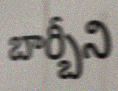
బార్బీని